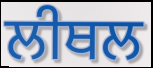
ਲੀਥਲ